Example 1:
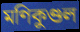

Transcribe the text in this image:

মণিকুণ্ডল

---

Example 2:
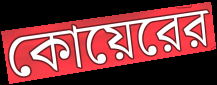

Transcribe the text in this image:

কোয়েরের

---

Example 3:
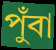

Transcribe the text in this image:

পুঁবা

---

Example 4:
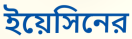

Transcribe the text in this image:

ইয়েসিনের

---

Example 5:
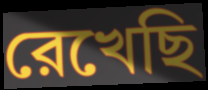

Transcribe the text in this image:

রেখেছি